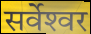
सर्वेश्‍वर